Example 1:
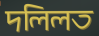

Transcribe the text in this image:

দলিলত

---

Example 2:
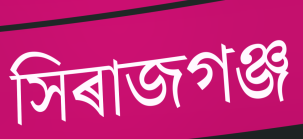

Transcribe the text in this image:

সিৰাজগঞ্জ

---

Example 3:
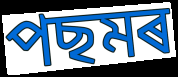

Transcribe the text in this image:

পছমৰ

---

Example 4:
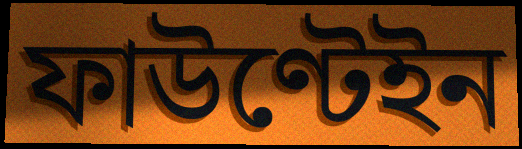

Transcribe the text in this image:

ফাউণ্টেইন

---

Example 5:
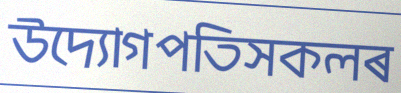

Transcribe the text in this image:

উদ্যোগপতিসকলৰ